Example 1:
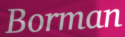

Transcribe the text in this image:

Borman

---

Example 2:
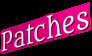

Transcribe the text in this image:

Patches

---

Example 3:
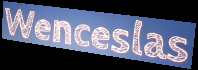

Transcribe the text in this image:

Wenceslas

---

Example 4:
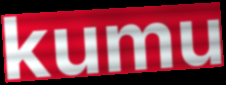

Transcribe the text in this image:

kumu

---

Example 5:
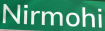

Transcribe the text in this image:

Nirmohi